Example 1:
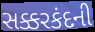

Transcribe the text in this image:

સક્કરકંદની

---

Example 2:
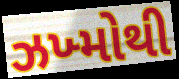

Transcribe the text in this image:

ઝખ્મોથી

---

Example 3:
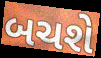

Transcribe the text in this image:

બચશે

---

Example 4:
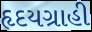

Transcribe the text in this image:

હૃદયગ્રાહી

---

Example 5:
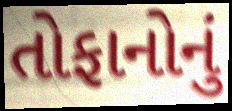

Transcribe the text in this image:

તોફાનોનું